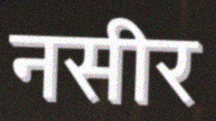
नसीर